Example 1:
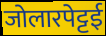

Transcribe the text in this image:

जोलारपेट्टई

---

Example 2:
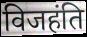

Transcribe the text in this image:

विजहंति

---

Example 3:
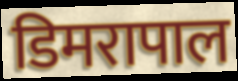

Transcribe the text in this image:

डिमरापाल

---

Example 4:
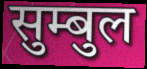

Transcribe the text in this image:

सुम्बुल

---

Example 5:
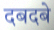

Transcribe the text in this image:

दबदबे